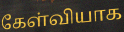
கேள்வியாக